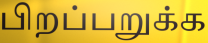
பிறப்பறுக்க